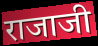
राजाजी